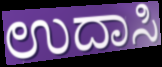
ಉದಾಸಿ